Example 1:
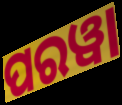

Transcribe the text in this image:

ପରୱା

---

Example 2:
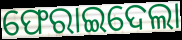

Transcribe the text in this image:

ଫେରାଇଦେଲା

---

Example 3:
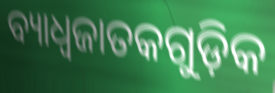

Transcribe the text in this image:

ବ୍ୟାଧ୍ଵଜାତକଗୁଡ଼ିକ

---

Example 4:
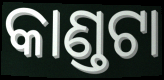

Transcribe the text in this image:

କାଣ୍ଡଟା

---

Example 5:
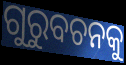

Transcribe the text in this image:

ଗୁରୁବଚନକୁ